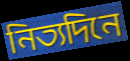
নিত্যদিনে